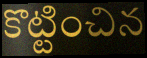
కొట్టించిన